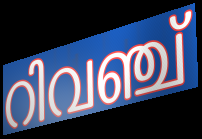
റിവഞ്ച്